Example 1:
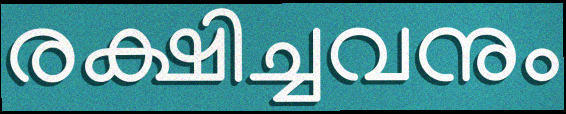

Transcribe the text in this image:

രക്ഷിച്ചവനും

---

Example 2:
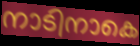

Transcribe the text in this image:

നാടിനാകെ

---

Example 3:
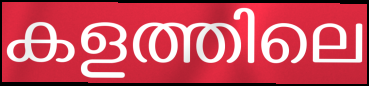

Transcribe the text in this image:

കളത്തിലെ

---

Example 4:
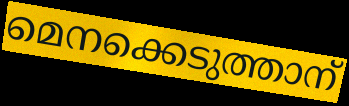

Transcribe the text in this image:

മെനക്കെടുത്താന്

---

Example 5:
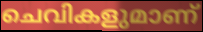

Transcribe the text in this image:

ചെവികളുമാണ്